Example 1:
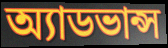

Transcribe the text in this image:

অ্যাডভান্স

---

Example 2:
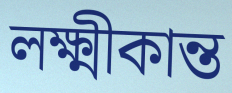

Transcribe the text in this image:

লক্ষ্মীকান্ত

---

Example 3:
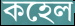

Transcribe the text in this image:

কহেল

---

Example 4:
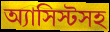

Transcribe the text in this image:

অ্যাসিস্টসহ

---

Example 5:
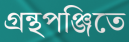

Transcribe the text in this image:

গ্রন্থপঞ্জিতে